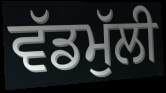
ਵੱਡਮੁੱਲੀ